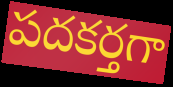
పదకర్తగా